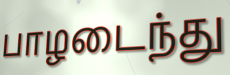
பாழடைந்து